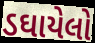
ડઘાયેલો